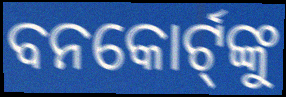
ବନକୋର୍ଟ୍‍ଙ୍କୁ